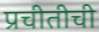
प्रचीतीची